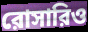
রোসারিও